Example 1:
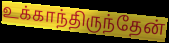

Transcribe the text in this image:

உக்காந்திருந்தேன்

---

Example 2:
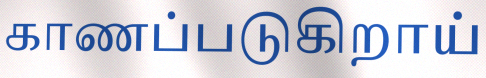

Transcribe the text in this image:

காணப்படுகிறாய்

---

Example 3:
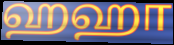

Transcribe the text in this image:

ஹஹா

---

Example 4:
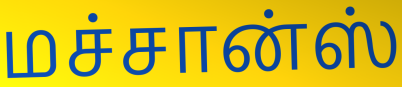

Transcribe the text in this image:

மச்சான்ஸ்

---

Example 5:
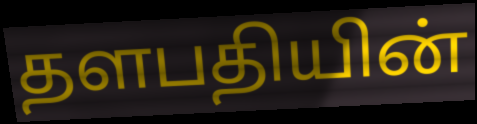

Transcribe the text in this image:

தளபதியின்